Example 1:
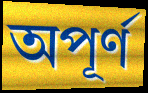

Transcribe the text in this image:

অপূর্ণ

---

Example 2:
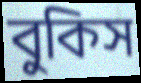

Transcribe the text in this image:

বুকিস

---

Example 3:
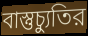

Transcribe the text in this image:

বাস্তুচ্যুতির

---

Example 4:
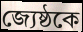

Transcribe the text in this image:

জ্যেষ্ঠকে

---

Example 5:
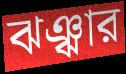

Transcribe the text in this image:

ঝঞ্ঝার